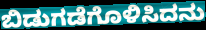
ಬಿಡುಗಡೆಗೊಳಿಸಿದನು